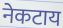
नेकटाय